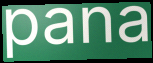
pana